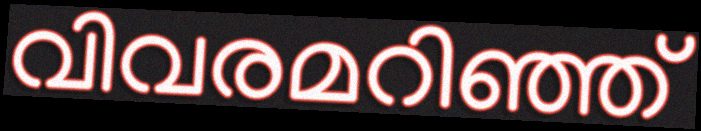
വിവരമറിഞ്ഞ്